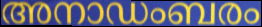
അനാഡംബരം